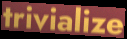
trivialize